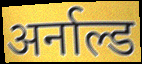
अर्नाल्ड